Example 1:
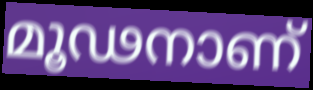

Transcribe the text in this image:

മൂഢനാണ്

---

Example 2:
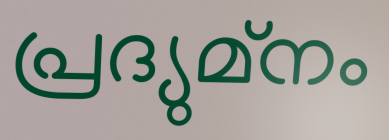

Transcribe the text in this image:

പ്രദ്യുമ്നം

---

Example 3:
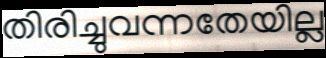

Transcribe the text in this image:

തിരിച്ചുവന്നതേയില്ല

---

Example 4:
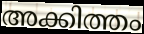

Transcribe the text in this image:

അക്കിത്തം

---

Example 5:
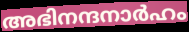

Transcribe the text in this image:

അഭിനന്ദനാർഹം